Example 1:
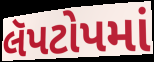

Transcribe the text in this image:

લૅપટોપમાં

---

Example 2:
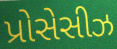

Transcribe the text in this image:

પ્રોસેસીઝ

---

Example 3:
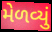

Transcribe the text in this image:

મેળવ્યું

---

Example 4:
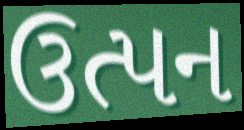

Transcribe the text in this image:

ઉત્પન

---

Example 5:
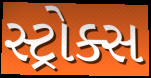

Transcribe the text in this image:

સ્ટ્રોક્સ